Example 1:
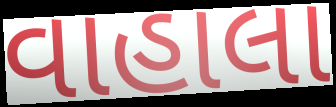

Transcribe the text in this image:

વાહાલા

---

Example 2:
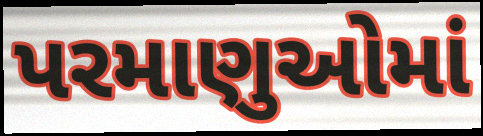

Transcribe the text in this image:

પરમાણુઓમાં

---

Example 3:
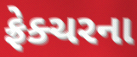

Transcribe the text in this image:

ફ્રેક્ચરના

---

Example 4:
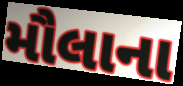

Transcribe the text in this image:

મૌલાના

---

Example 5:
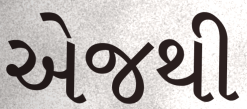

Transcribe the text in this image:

એજથી